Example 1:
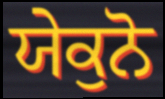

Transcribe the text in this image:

ਯੇਕੁਨੋ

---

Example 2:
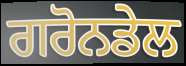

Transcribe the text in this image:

ਗਰੋਨਡੇਲ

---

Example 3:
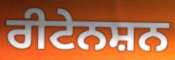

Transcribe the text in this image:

ਰੀਟੇਨਸ਼ਨ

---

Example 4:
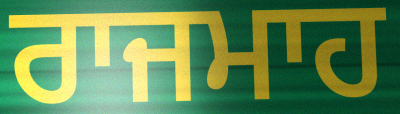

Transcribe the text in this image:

ਰਾਜਮਾਹ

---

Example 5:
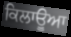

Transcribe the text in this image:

ਕਿਲਾਊਆ